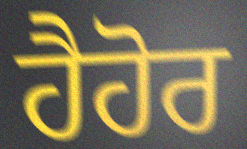
ਹੈਹੋਰ